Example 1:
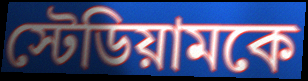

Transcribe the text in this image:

স্টেডিয়ামকে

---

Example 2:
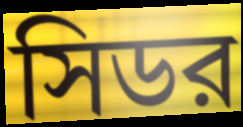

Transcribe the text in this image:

সিডর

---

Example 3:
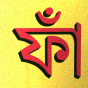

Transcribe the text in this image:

ফাঁ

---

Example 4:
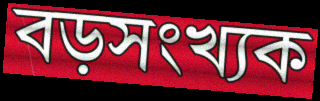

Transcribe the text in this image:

বড়সংখ্যক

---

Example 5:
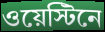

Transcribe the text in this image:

ওয়েস্টিনে